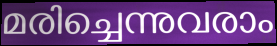
മരിച്ചെന്നുവരാം